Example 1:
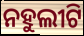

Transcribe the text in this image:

ନହୁଲୀଟି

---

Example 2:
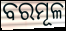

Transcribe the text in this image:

ବରମୂଳ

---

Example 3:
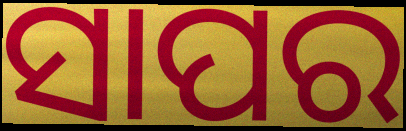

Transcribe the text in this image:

ସାପର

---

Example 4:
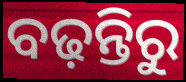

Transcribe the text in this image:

ବଢ଼ନ୍ତିରୁ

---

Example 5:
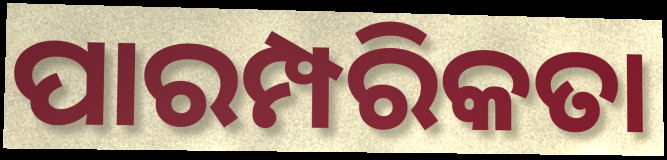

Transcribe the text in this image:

ପାରମ୍ପରିକତା